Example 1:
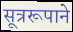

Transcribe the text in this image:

सूत्ररूपाने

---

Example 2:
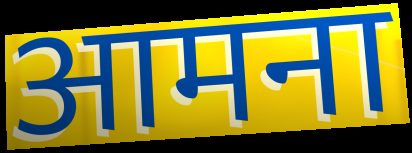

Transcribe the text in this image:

आमना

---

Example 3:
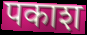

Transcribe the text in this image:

पकाश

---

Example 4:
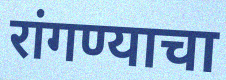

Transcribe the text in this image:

रांगण्याचा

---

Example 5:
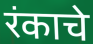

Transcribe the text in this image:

रंकाचे